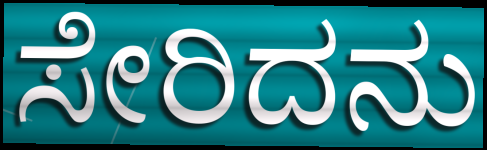
ಸೇರಿದನು